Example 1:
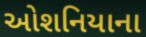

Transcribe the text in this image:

ઓશનિયાના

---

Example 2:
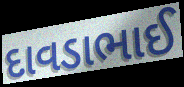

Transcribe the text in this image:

દાવડાભાઈ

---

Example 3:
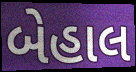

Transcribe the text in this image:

બેહાલ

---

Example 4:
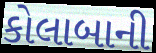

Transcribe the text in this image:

કોલાબાની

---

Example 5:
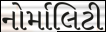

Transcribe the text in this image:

નોર્માલિટી